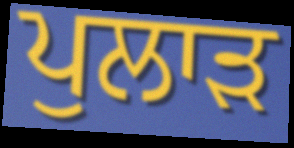
ਪੁਲਾੜ